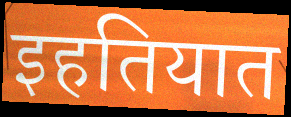
इहतियात